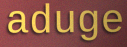
aduge